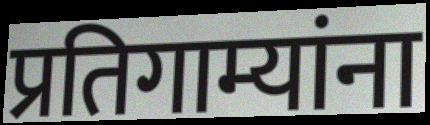
प्रतिगाम्यांना